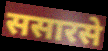
ससारसे